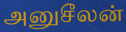
அனுசீலன்